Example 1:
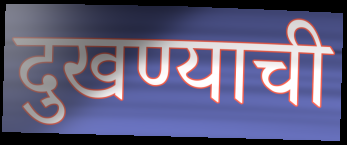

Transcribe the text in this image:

दुखण्याची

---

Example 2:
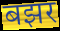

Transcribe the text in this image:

बझर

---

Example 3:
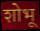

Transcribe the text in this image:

शोभू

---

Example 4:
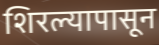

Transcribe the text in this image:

शिरल्यापासून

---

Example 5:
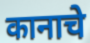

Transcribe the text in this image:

कानाचे